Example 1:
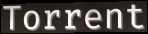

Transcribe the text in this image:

Torrent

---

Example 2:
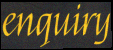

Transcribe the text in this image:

enquiry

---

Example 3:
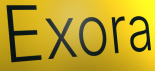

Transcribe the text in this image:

Exora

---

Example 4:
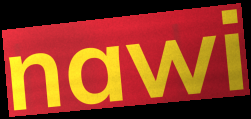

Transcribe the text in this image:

nawi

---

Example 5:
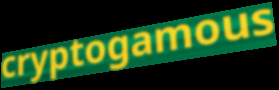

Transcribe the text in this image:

cryptogamous